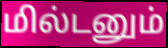
மில்டனும்